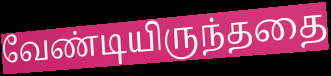
வேண்டியிருந்ததை